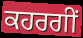
ਕਹਰਗੀਂ